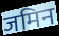
जमिन